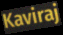
Kaviraj